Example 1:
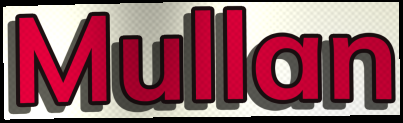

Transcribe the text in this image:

Mullan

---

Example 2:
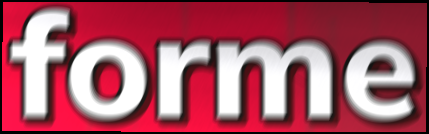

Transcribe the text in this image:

forme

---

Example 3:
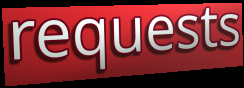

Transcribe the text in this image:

requests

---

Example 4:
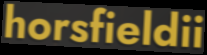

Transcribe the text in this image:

horsfieldii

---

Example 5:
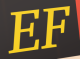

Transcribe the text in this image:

EF